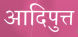
आदिपुत्त